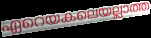
ഏറെയകലെയല്ലാത്ത